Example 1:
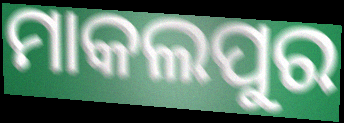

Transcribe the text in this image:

ମାକଲପୁର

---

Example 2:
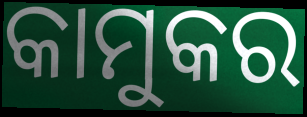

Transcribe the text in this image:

କାମୁକର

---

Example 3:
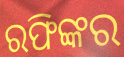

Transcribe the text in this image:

ରଫିଙ୍କର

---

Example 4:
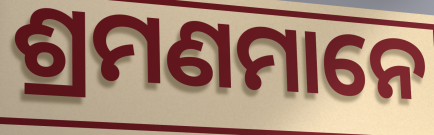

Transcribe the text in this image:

ଶ୍ରମଣମାନେ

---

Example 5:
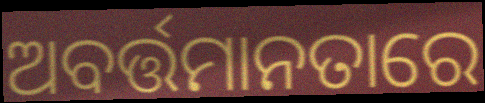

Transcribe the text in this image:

ଅବର୍ତ୍ତମାନତାରେ